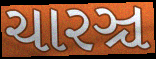
ચારઞ્ચ